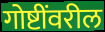
गोष्टींवरील